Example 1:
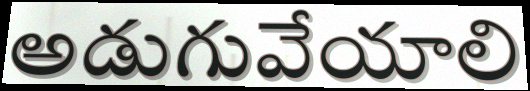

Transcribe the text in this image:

అడుగువేయాలి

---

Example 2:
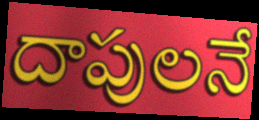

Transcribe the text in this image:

దాపులనే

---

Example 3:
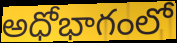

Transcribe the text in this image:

అధోభాగంలో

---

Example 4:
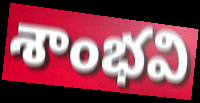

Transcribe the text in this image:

శాంభవి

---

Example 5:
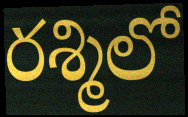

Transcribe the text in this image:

రశ్మిలో